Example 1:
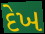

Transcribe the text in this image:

દેખ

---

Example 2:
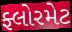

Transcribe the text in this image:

ફ્લોરમેટ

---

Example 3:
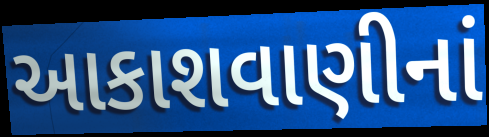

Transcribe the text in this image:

આકાશવાણીનાં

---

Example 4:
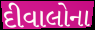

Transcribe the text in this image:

દીવાલોના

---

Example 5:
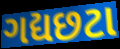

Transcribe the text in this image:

ગદ્યછટા